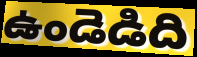
ఉండెడిది